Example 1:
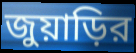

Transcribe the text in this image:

জুয়াড়ির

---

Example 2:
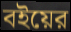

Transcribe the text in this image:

বইয়ের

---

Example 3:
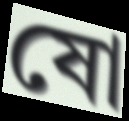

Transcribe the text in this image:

ষো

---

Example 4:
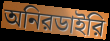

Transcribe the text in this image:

অনিরডাইরি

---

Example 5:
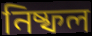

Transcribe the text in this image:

নিষ্ফল